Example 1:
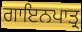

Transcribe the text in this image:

ਗਾਇਨਪਾਤ੍ਰ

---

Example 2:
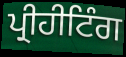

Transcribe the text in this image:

ਪ੍ਰੀਹੀਟਿੰਗ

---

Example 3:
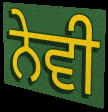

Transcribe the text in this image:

ਨੇਵੀ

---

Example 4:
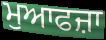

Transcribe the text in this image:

ਮੁਆਫਜ਼ਾ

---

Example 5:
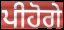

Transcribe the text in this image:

ਪੀਹੋਗੇ